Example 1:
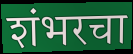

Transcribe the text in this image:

शंभरचा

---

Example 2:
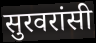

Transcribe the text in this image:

सुरवरांसी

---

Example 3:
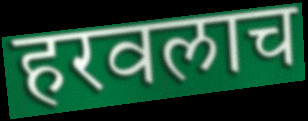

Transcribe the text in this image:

हरवलाच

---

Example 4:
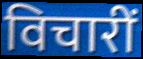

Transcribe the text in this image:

विचारीं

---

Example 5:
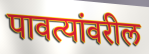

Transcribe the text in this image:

पावत्यांवरील